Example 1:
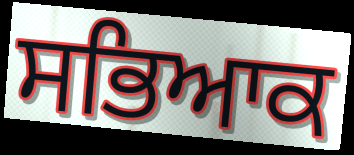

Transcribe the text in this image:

ਸਭਿਆਕ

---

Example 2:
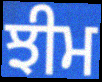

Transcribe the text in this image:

ਝੀਮ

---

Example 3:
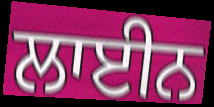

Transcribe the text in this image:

ਲਾਈਨ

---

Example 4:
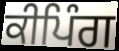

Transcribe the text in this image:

ਕੀਪਿੰਗ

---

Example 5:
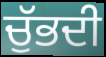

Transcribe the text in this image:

ਚੁੱਭਦੀ